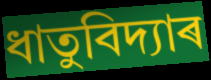
ধাতুবিদ্যাৰ